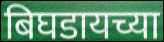
बिघडायच्या